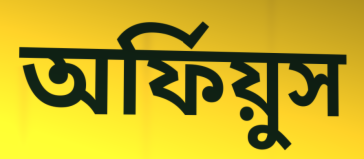
অর্ফিয়ুস